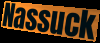
Nassuck